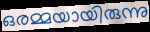
ഒരമ്മയായിരുന്നു